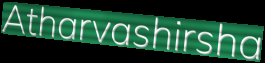
Atharvashirsha